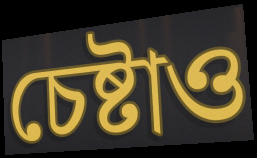
চেষ্টাও